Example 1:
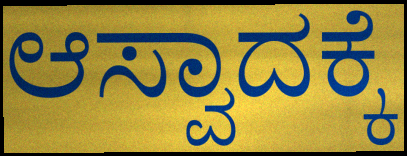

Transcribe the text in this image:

ಆಸ್ವಾದಕ್ಕೆ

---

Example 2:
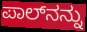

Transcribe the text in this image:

ಪಾಲ್‍ನನ್ನು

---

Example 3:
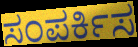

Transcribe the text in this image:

ಸಂಪರ್ಕಿಸ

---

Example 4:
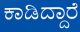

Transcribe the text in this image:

ಕಾಡಿದ್ದಾರೆ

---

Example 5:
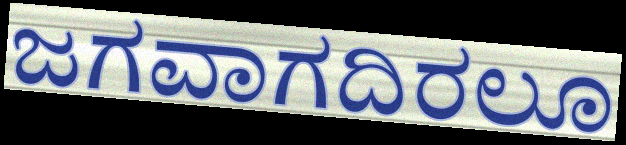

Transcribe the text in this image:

ಜಗವಾಗದಿರಲೂ